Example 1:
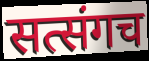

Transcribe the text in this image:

सत्संगच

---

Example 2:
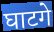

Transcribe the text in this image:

घाटगे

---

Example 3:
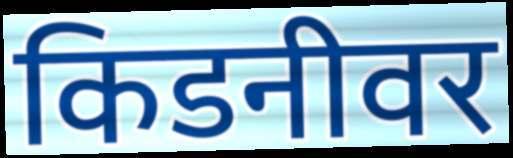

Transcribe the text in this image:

किडनीवर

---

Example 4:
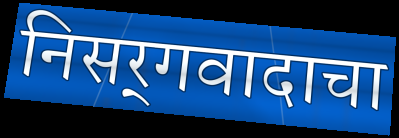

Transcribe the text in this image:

निसर्गवादाचा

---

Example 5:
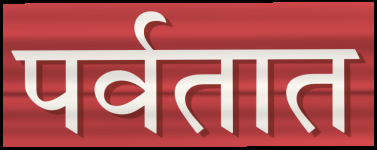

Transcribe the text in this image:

पर्वतात